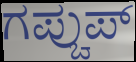
ಗಪ್ಚುಪ್